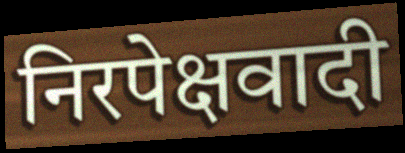
निरपेक्षवादी